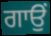
ਗਾਉਂ